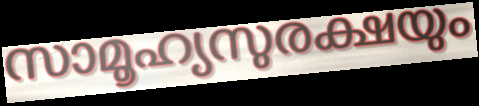
സാമൂഹ്യസുരക്ഷയും